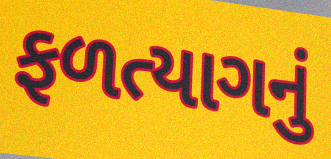
ફળત્યાગનું